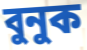
বুনুক